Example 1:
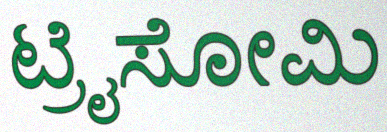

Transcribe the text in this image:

ಟ್ರೈಸೋಮಿ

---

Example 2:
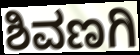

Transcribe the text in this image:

ಶಿವಣಗಿ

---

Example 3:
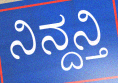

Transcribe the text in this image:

ನಿನ್ದನ್ತಿ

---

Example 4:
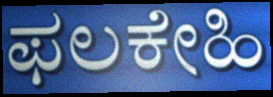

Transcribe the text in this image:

ಫಲಕೇಹಿ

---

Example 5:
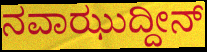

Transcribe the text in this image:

ನವಾಝುದ್ದೀನ್